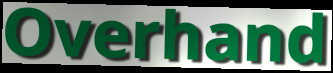
Overhand